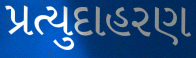
પ્રત્યુદાહરણ